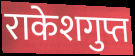
राकेशगुप्त